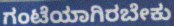
ಗಂಟೆಯಾಗಿರಬೇಕು